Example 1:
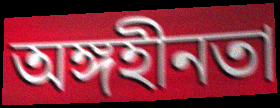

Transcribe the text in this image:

অঙ্গহীনতা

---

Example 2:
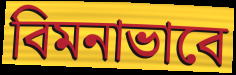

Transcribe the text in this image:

বিমনাভাবে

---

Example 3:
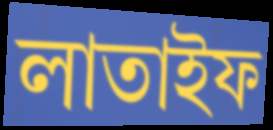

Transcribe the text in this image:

লাতাইফ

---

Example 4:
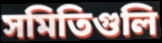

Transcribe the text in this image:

সমিতিগুলি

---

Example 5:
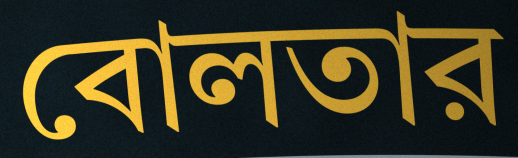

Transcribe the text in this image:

বোলতার